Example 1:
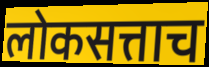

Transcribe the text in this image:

लोकसत्ताच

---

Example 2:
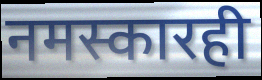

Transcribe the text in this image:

नमस्कारही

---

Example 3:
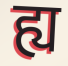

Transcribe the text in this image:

ह्य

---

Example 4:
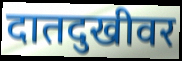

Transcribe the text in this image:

दातदुखीवर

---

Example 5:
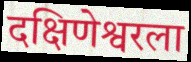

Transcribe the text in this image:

दक्षिणेश्वरला